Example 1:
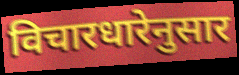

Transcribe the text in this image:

विचारधारेनुसार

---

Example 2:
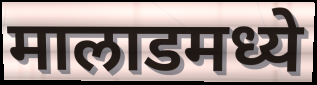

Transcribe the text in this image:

मालाडमध्ये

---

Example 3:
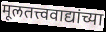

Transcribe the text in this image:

मूलतत्त्ववाद्यांच्या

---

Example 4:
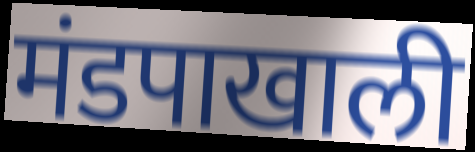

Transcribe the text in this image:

मंडपाखाली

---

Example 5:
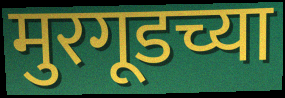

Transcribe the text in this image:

मुरगूडच्या